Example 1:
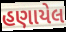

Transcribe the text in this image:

હણાયેલ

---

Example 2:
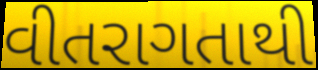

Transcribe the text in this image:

વીતરાગતાથી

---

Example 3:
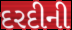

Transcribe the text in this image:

દરદીની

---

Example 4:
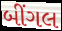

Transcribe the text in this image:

બીંગલ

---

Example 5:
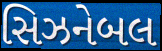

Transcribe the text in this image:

સિઝનેબલ